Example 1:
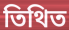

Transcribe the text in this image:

তিথিত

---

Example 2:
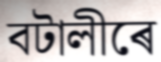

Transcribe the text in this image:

বটালীৰে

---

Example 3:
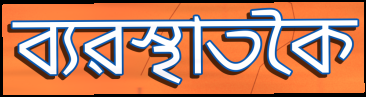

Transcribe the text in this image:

ব্যৱস্থাতকৈ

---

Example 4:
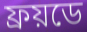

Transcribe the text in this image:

ফ্ৰয়ডে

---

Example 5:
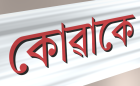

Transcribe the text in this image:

কোৱাকে